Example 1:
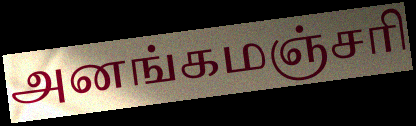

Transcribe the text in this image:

அனங்கமஞ்சரி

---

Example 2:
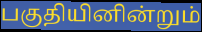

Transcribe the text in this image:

பகுதியினின்றும்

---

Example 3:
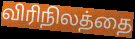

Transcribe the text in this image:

விரிநிலத்தை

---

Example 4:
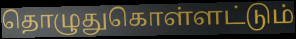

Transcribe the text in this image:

தொழுதுகொள்ளட்டும்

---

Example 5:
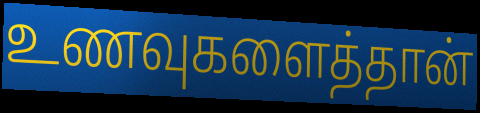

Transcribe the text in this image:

உணவுகளைத்தான்